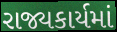
રાજ્યકાર્યમાં